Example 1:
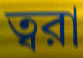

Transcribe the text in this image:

ত্বরা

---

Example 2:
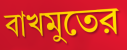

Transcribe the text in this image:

বাখমুতের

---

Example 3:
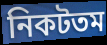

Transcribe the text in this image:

নিকটতম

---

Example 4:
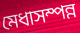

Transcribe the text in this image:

মেধাসম্পন্ন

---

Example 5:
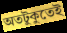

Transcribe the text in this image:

অতটুকুতেই